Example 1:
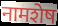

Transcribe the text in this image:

नामशेष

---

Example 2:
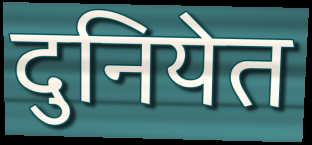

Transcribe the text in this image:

दुनियेत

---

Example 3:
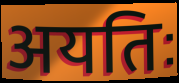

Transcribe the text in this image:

अयतिः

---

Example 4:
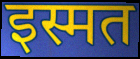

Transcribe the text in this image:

इस्मत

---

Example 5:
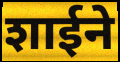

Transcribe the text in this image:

शाईने